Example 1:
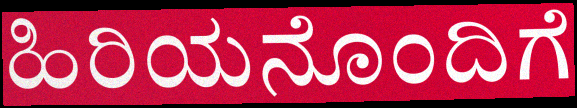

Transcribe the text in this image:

ಹಿರಿಯನೊಂದಿಗೆ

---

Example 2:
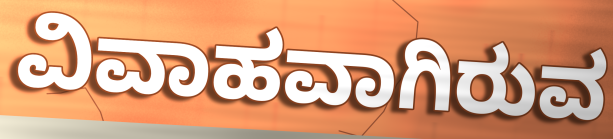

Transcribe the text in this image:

ವಿವಾಹವಾಗಿರುವ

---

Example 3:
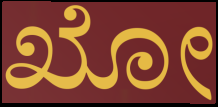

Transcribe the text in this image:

ಖೋ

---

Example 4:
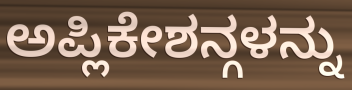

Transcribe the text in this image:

ಅಪ್ಲಿಕೇಶನ್ಗಳನ್ನು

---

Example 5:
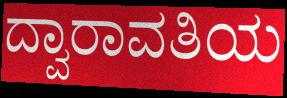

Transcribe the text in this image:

ದ್ವಾರಾವತಿಯ